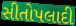
સીતોપલાદી